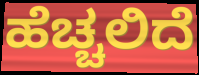
ಹೆಚ್ಚಲಿದೆ